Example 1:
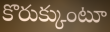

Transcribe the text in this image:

కొరుక్కుంటూ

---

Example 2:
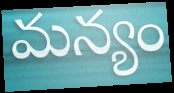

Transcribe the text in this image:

మన్యం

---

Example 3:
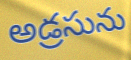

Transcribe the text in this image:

అడ్రసును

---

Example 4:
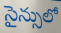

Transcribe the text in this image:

సైన్సులో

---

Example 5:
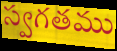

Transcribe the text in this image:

స్వగతము